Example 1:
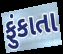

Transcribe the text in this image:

ફુંકાતા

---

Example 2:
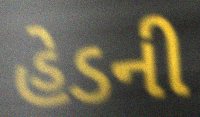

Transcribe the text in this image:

હેડની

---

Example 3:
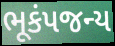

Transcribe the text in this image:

ભૂકંપજન્ય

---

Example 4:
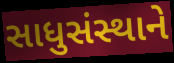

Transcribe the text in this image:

સાધુસંસ્થાને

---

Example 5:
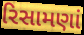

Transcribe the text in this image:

રિસામણાં